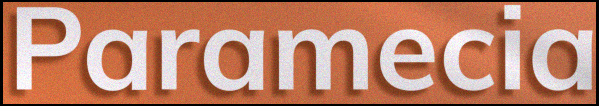
Paramecia